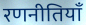
रणनीतियाँ